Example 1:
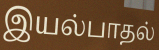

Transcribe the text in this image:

இயல்பாதல்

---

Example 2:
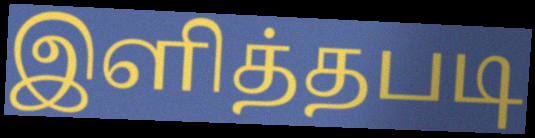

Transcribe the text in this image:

இளித்தபடி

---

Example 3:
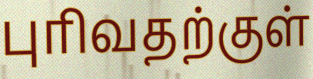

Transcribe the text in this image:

புரிவதற்குள்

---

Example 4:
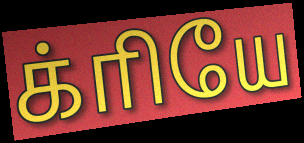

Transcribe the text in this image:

க்ரியே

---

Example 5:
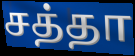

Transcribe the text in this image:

சத்தா